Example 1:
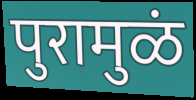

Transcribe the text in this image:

पुरामुळं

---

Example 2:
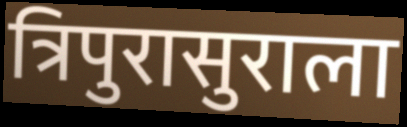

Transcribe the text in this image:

त्रिपुरासुराला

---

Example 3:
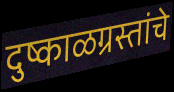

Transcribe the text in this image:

दुष्काळग्रस्तांचे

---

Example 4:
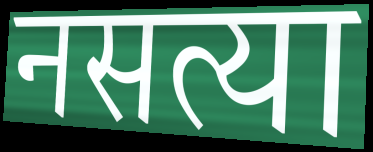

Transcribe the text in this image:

नसत्या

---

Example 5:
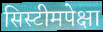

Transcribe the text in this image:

सिस्टीमपेक्षा